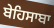
ਬੇਹਿਸਾਬਾ